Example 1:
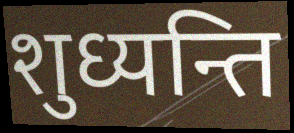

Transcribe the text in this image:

शुध्यन्ति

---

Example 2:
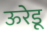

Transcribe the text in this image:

ऊरेडू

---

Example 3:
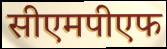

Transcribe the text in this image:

सीएमपीएफ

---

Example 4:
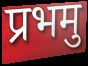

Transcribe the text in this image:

प्रभमु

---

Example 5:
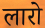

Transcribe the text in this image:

लारो